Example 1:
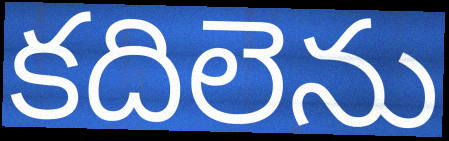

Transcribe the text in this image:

కదిలెను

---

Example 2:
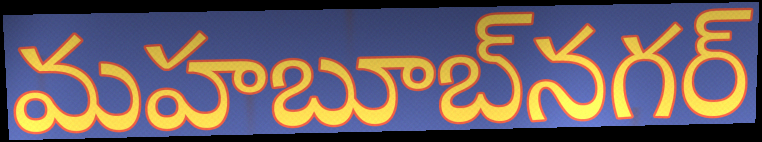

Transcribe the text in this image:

మహబూబ్‌నగర్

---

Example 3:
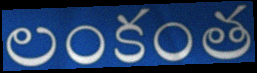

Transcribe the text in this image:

లంకంత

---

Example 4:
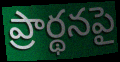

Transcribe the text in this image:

ప్రార్థనపై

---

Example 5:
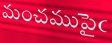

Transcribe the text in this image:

మంచముపైఁ